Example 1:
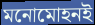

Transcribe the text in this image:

মনোমোহনই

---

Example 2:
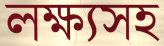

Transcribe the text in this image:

লক্ষ্যসহ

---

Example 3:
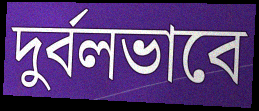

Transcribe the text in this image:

দুর্বলভাবে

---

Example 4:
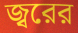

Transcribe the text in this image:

জ্বরের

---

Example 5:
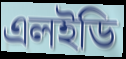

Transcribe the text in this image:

এলইডি